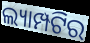
ଲ୍ୟାମ୍ପଟିର